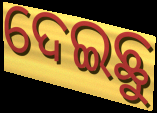
ଦେଇଛୁ